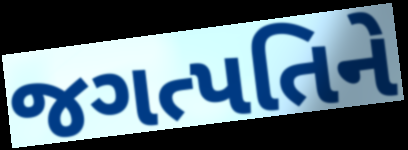
જગત્પતિને